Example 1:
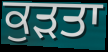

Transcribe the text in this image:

ਕੁੜਤਾ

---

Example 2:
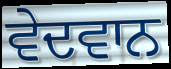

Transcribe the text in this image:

ਵੇਦਵਾਨ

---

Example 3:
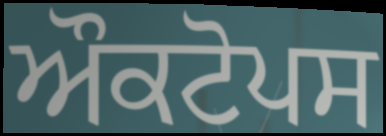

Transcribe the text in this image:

ਔਕਟੋਪਸ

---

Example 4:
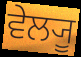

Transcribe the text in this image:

ਵੇਲ੍ਯੂ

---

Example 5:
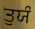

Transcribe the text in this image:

ਤੁਯੰ